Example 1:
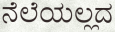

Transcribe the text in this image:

ನೆಲೆಯಲ್ಲದ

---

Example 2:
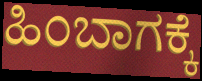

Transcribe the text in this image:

ಹಿಂಬಾಗಕ್ಕೆ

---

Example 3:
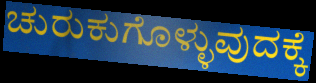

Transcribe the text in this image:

ಚುರುಕುಗೊಳ್ಳುವುದಕ್ಕೆ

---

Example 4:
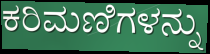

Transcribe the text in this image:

ಕರಿಮಣಿಗಳನ್ನು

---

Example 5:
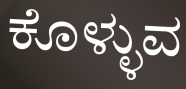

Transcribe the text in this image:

ಕೊಳ್ಳುವ